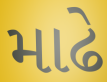
માઢે